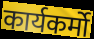
कार्यकर्मो